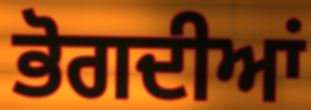
ਭੋਗਦੀਆਂ